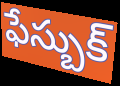
ఫేస్బుక్